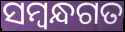
ସମ୍ବନ୍ଧଗତ